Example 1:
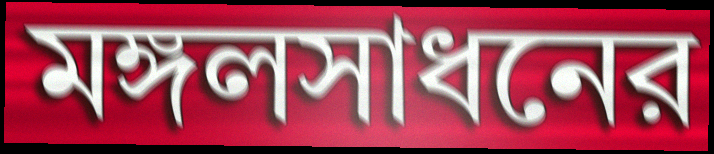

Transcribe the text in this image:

মঙ্গলসাধনের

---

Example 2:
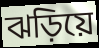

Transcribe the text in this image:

ঝড়িয়ে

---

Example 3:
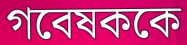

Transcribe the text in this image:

গবেষককে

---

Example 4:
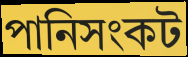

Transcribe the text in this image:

পানিসংকট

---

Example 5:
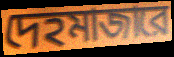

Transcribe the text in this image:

দেহমাজারে